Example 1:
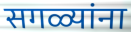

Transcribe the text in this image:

सगळ्यांना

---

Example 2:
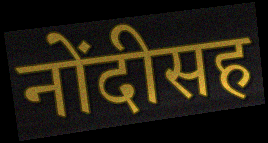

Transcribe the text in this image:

नोंदीसह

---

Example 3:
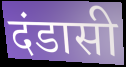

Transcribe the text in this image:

दंडासी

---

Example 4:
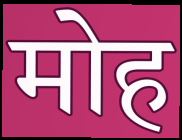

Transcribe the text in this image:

मोह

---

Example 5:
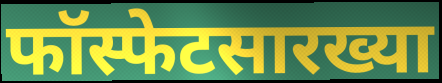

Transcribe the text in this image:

फॉस्फेटसारख्या